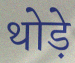
थोड़े